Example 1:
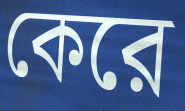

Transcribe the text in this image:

কেরে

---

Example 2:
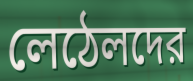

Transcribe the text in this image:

লেঠেলদের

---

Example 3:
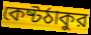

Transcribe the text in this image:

কেষ্টঠাকুর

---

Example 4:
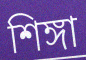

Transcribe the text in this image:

শিঙ্গা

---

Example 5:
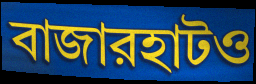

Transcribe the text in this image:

বাজারহাটও